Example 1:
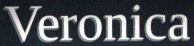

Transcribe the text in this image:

Veronica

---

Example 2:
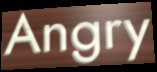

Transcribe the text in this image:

Angry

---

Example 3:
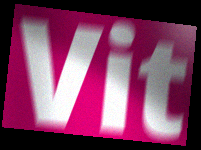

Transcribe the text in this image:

Vit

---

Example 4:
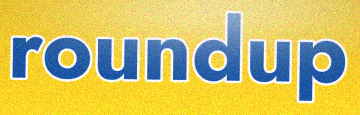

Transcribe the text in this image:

roundup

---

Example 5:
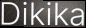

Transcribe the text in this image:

Dikika